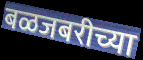
बळजबरीच्या